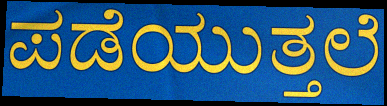
ಪಡೆಯುತ್ತಲೆ